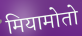
मियामोतो